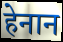
हेनान